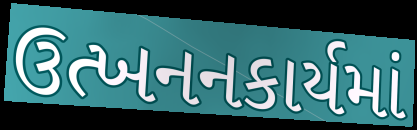
ઉત્ખનનકાર્યમાં